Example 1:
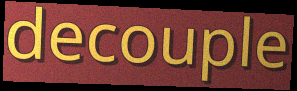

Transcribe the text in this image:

decouple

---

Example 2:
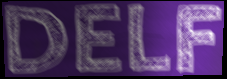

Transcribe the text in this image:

DELF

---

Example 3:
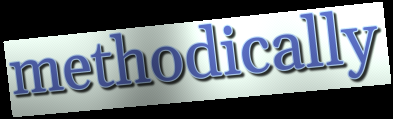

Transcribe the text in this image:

methodically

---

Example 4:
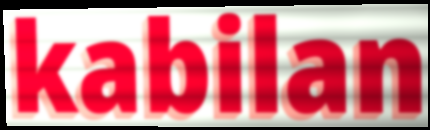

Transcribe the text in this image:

kabilan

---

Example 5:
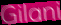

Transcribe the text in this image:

Gilani